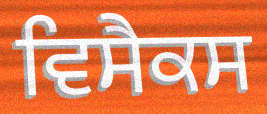
ਵਿਸੈਕਸ